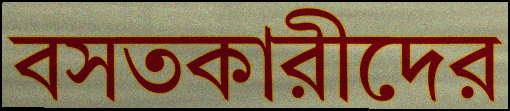
বসতকারীদের